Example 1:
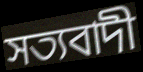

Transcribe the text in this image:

সত্যবাদী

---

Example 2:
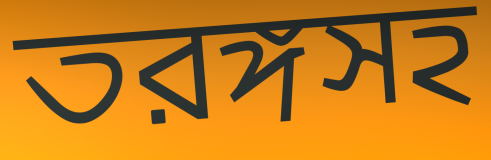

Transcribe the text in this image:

তরঙ্গসহ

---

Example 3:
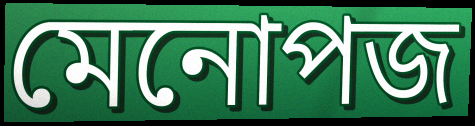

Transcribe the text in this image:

মেনোপজ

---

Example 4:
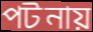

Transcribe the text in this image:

পটনায়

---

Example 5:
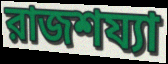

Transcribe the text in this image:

রাজশয্যা